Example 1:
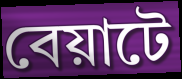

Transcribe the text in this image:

বেয়াটে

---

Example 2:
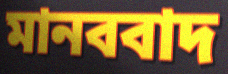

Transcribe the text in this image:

মানববাদ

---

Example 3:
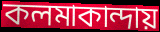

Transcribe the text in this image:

কলমাকান্দায়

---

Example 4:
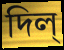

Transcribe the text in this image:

দিল্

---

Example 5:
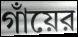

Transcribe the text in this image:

গাঁয়ের